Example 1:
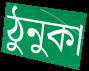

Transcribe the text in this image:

ঠুনুকা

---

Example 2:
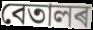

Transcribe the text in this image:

বেতালৰ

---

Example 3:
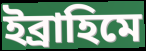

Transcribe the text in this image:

ইব্ৰাহিমে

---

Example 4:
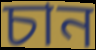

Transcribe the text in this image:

চান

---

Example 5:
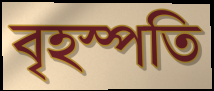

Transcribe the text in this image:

বৃহস্পতি